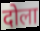
दोला